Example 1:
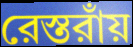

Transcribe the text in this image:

রেস্তরাঁয়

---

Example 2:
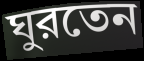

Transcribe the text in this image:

ঘুরতেন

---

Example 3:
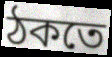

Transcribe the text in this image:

ঠকতে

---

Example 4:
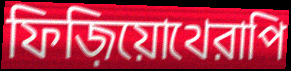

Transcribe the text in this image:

ফিজ়িয়োথেরাপি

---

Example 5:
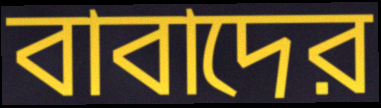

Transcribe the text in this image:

বাবাদের